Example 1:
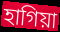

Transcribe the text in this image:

হাগিয়া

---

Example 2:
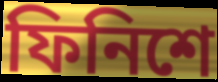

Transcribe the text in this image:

ফিনিশে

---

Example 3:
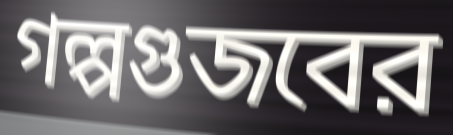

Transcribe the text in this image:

গল্পগুজবের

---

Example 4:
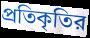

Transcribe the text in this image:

প্রতিকৃতির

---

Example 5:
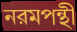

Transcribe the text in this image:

নরমপন্থী